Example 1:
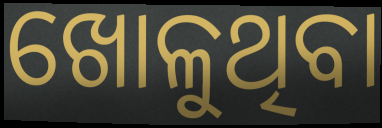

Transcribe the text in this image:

ଖୋଳୁଥିବା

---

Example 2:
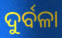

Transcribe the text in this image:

ଦୁର୍ବଳା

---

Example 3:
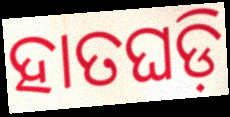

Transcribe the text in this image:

ହାତଘଡ଼ି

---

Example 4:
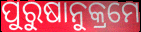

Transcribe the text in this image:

ପୁରୁଷାନୁକ୍ରମେ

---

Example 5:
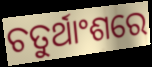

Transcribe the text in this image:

ଚତୁର୍ଥାଂଶରେ